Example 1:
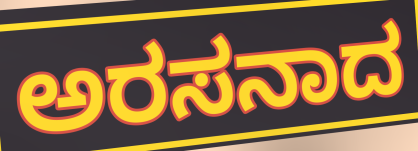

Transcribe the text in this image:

ಅರಸನಾದ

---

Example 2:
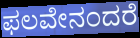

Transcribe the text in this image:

ಫಲವೇನಂದರೆ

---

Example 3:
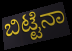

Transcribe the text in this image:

ಬಿಟ್ಟೆನಾ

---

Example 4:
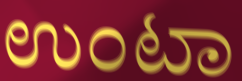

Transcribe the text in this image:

ಉಂಟಾ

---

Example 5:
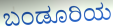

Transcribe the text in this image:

ಬಂಡೂರಿಯ